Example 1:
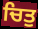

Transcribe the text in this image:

ਚਿਤੁ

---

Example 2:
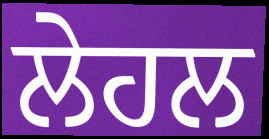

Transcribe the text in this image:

ਲੇਹਲ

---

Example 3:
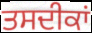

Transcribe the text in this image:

ਤਸਦੀਕਾਂ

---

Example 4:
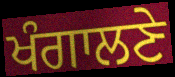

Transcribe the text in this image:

ਖੰਗਾਲਣੇ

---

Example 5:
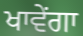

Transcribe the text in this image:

ਖਾਵੇਂਗਾ